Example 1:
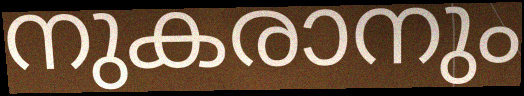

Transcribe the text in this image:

നുകരാനും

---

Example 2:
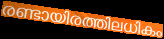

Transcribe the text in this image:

രണ്ടായിരത്തിലധികം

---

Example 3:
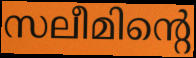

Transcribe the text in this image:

സലീമിന്റെ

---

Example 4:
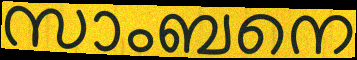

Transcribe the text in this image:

സാംബനെ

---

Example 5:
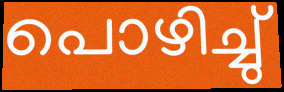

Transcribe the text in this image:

പൊഴിച്ചു്